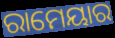
ରାମେୟାର